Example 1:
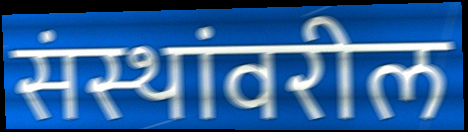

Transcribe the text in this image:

संस्थांवरील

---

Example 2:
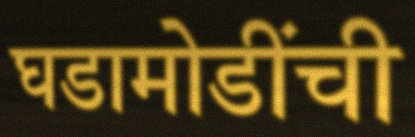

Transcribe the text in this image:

घडामोडींची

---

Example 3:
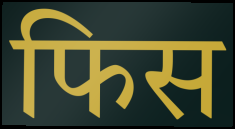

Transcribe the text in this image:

फिस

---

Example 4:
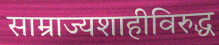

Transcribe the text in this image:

साम्राज्यशाहीविरुद्ध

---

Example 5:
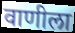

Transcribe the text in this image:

वाणीला